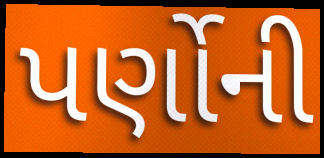
પર્ણોની